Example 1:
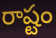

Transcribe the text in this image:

రాష్టం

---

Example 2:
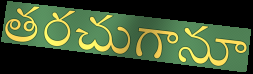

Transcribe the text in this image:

తరచుగానూ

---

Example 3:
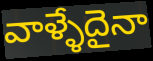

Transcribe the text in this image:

వాళ్ళేదైనా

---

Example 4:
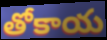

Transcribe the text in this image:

తోకాయ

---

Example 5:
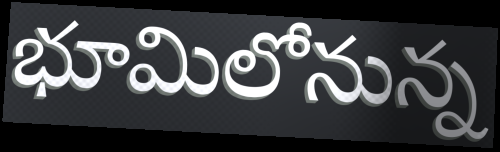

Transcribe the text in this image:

భూమిలోనున్న